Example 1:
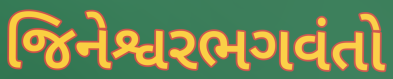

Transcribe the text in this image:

જિનેશ્વરભગવંતો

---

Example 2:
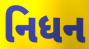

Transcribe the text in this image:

નિધન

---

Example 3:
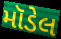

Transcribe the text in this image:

મૉડેલ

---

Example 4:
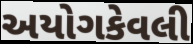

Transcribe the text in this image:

અયોગકેવલી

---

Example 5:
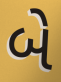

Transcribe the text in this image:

બે